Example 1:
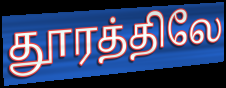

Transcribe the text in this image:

தூரத்திலே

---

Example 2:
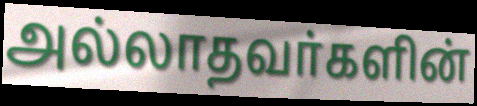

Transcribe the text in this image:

அல்லாதவர்களின்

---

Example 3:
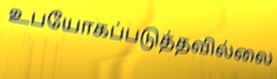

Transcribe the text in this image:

உபயோகப்படுத்தவில்லை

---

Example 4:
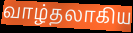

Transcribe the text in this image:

வாழ்தலாகிய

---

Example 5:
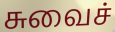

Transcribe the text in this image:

சுவைச்